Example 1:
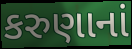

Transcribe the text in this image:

કરુણાનાં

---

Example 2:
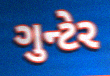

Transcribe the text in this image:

ગુન્ટેર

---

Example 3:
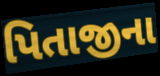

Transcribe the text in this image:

પિતાજીના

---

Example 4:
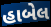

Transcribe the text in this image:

હાબેલ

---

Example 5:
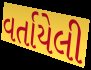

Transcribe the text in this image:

વર્તાયેલી